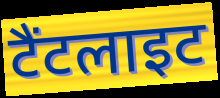
टैंटलाइट